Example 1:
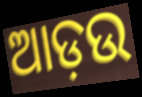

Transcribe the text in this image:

ଆଡ଼ଉ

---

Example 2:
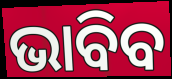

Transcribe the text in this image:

ଭାବିବ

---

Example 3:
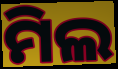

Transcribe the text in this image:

ମିଲ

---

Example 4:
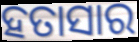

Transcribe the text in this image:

ହତାସାର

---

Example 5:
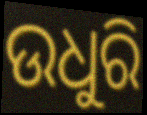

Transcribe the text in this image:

ଉଧୁରି